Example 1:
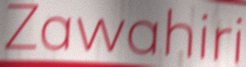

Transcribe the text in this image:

Zawahiri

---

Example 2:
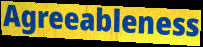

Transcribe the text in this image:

Agreeableness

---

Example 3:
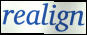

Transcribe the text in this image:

realign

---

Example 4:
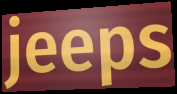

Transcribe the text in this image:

jeeps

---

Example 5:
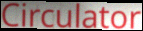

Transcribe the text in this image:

Circulator